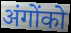
अंगोंको